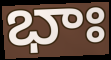
భాః